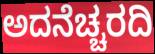
ಅದನೆಚ್ಚರದಿ